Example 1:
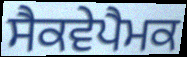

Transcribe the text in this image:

ਸੈਕਵੇਪੈਮਕ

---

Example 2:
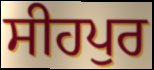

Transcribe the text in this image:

ਸੀਹਪੁਰ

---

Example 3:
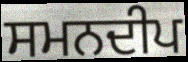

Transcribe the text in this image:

ਸਮਨਦੀਪ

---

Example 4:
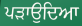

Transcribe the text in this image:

ਪੜਾਉਦਿਆ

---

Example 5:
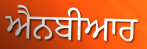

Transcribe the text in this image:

ਐਨਬੀਆਰ